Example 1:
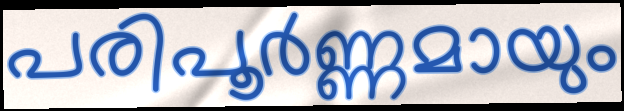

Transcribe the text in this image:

പരിപൂർണ്ണമായും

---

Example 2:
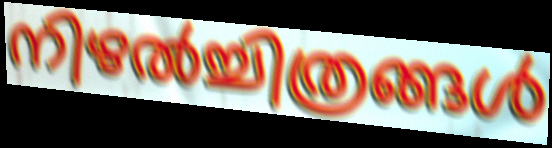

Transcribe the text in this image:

നിഴൽച്ചിത്രങ്ങൾ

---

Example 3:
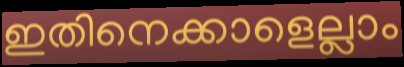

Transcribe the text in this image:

ഇതിനെക്കാളെല്ലാം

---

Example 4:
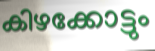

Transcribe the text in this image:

കിഴക്കോട്ടും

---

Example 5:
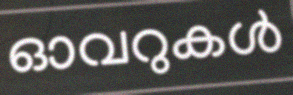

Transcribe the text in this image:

ഓവറുകൾ